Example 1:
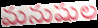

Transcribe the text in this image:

మనుషుల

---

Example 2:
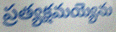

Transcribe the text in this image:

ప్రత్యక్షమయ్యెను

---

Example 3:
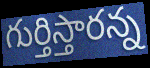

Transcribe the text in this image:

గుర్తిస్తారన్న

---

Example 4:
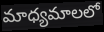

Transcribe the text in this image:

మాధ్యమాలలో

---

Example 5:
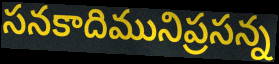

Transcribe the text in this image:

సనకాదిమునిప్రసన్న